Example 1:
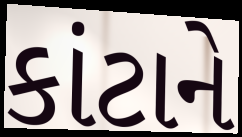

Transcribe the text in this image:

કાંટાને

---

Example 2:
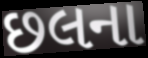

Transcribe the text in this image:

છલના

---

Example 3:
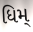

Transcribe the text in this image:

ધિમ્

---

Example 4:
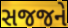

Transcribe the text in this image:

સજજને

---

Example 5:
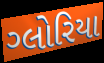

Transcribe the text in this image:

ગ્લોરિયા